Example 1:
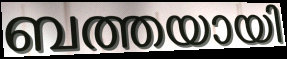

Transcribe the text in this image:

ബത്തയായി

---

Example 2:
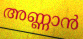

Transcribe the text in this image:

അണ്ണാൻ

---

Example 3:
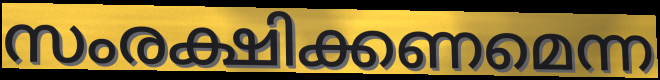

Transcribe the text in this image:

സംരക്ഷിക്കണമെന്ന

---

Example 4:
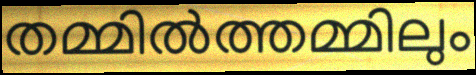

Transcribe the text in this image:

തമ്മിൽത്തമ്മിലും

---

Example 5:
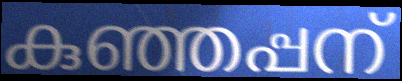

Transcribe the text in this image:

കുഞ്ഞപ്പന്